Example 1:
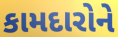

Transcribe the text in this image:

કામદારોને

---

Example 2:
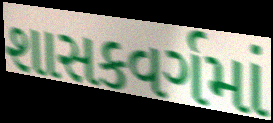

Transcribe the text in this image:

શાસકવર્ગમાં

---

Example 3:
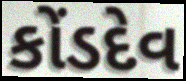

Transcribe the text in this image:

કોંડદેવ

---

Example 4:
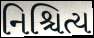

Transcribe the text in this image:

નિશ્ચિત્ય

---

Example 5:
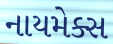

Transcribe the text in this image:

નાયમેક્સ